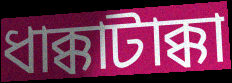
ধাক্কাটাক্কা